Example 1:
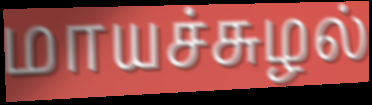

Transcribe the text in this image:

மாயச்சுழல்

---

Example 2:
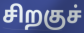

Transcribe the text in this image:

சிறகுச்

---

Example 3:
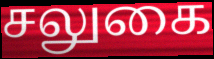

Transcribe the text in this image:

சலுகை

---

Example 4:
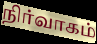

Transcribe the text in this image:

நிர்வாகம்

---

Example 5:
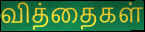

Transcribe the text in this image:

வித்தைகள்